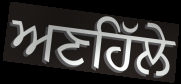
ਅਣਹਿੱਲੇ